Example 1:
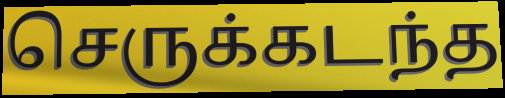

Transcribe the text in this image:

செருக்கடந்த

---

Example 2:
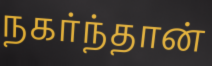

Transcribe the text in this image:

நகர்ந்தான்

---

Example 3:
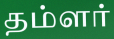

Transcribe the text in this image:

தம்ளர்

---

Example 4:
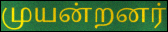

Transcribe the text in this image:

முயன்றனர்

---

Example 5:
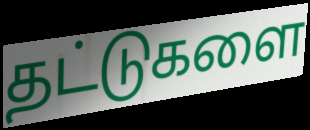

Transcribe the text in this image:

தட்டுகளை